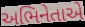
અભિનેતાએ